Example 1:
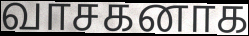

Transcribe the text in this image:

வாசகனாக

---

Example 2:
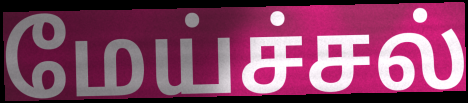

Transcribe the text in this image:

மேய்ச்சல்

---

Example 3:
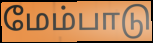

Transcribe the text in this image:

மேம்பாடு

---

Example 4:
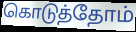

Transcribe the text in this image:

கொடுத்தோம்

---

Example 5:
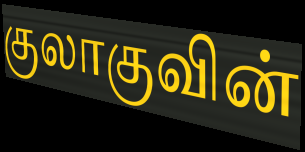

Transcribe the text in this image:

குலாகுவின்